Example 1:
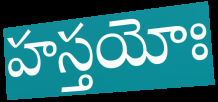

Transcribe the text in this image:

హస్తయోః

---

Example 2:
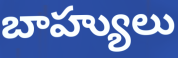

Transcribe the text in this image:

బాహ్యులు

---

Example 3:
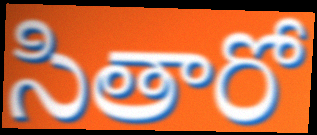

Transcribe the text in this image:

సితారో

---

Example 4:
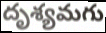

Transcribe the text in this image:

దృశ్యమగు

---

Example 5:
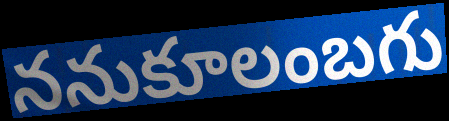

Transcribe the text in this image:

ననుకూలంబగు